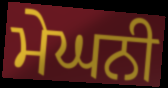
ਮੇਘਨੀ